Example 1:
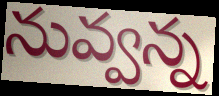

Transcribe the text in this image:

నువ్వన్న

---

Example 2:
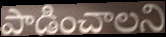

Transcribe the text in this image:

పాడించాలని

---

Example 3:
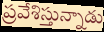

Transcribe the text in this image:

ప్రవేశిస్తున్నాడు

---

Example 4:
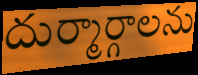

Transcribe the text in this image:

దుర్మార్గాలను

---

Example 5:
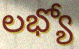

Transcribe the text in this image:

లభ్యో